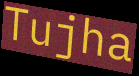
Tujha